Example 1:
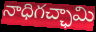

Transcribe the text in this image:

నాధిగచ్ఛామి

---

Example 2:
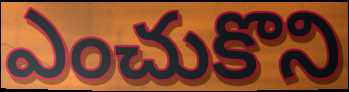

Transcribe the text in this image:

ఎంచుకొని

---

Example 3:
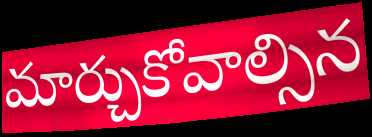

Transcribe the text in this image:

మార్చుకోవాల్సిన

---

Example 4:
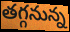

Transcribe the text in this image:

తగ్గనున్న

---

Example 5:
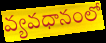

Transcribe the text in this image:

వ్యవధానంలో